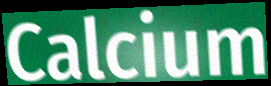
Calcium